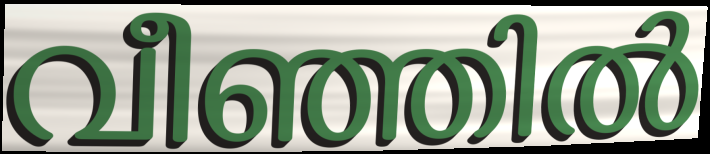
വീഞ്ഞിൽ